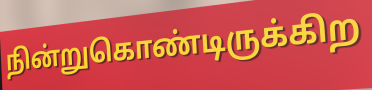
நின்றுகொண்டிருக்கிற